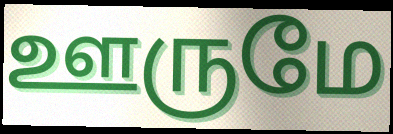
ஊருமே